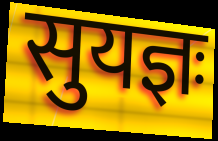
सुयज्ञः